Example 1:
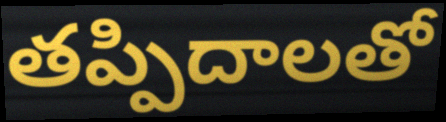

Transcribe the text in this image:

తప్పిదాలతో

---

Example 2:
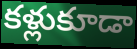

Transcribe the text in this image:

కళ్లుకూడా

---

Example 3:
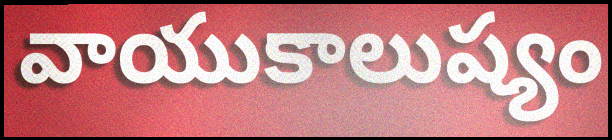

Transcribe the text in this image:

వాయుకాలుష్యం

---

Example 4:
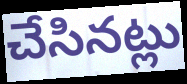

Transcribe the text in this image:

చేసినట్లు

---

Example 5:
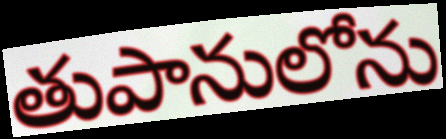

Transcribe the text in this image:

తుపానులోను